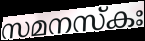
സമനസ്കഃ